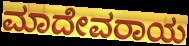
ಮಾದೇವರಾಯ